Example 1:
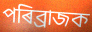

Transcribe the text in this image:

পৰিব্ৰাজক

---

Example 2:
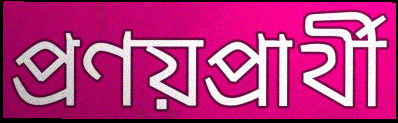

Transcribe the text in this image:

প্ৰণয়প্ৰাৰ্থী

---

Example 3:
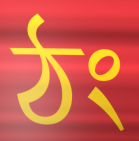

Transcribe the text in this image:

ঠং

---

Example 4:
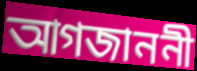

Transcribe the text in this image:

আগজাননী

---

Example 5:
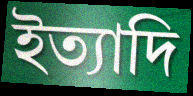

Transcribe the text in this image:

ইত্য়াদি